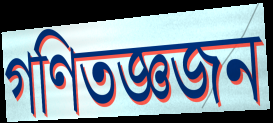
গণিতজ্ঞজন